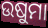
ଉଷୁମା